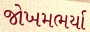
જોખમભર્યા